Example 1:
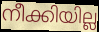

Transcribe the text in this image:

നീക്കിയില്ല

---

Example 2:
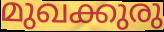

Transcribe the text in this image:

മുഖക്കുരു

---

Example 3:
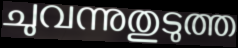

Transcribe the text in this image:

ചുവന്നുതുടുത്ത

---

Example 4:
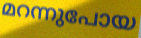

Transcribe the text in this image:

മറന്നുപോയ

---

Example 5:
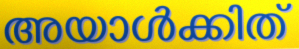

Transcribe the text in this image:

അയാൾക്കിത്